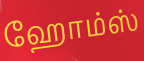
ஹோம்ஸ்